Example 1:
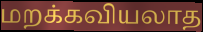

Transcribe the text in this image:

மறக்கவியலாத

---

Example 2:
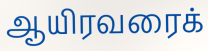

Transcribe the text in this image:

ஆயிரவரைக்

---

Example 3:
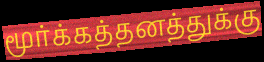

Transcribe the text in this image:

மூர்க்கத்தனத்துக்கு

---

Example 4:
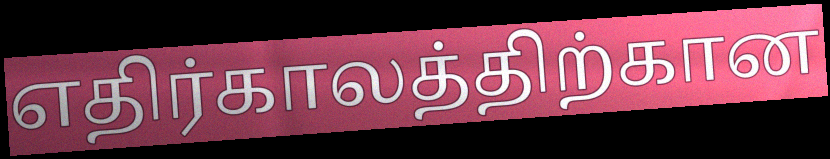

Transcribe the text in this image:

எதிர்காலத்திற்கான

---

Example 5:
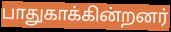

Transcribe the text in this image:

பாதுகாக்கின்றனர்